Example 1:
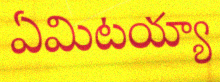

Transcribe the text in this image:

ఏమిటయ్యా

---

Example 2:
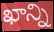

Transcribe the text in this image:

ఖాన్ని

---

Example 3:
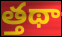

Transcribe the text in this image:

త్తథా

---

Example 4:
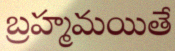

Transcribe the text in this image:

బ్రహ్మమయితే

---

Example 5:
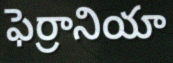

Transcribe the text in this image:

ఫెర్రానియా